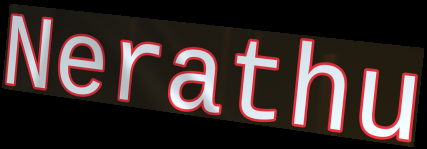
Nerathu